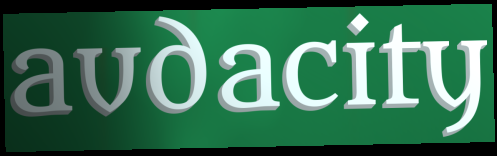
audacity